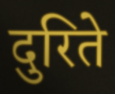
दुरिते